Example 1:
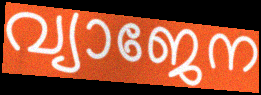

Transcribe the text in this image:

വ്യാജേന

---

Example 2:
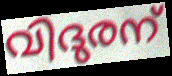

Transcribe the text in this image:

വിദുരന്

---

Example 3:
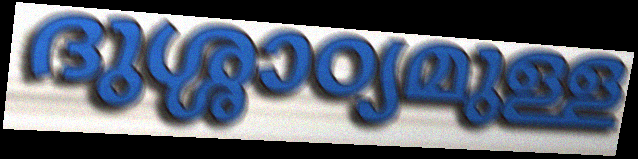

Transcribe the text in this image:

ദുശ്ശാഠ്യമുള്ള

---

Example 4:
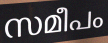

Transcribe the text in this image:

സമീപം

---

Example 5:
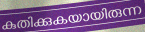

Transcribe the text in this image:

കുതിക്കുകയായിരുന്ന